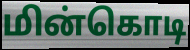
மின்கொடி